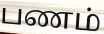
பணம்